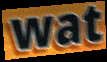
wat